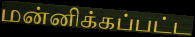
மன்னிக்கப்பட்ட